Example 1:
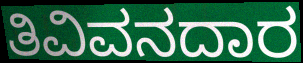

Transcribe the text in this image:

ತಿವಿವನದಾರ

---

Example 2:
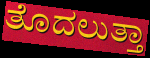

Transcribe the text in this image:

ತೊದಲುತ್ತಾ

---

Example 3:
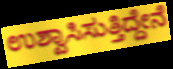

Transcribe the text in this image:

ಉಶ್ವಾಸಿಸುತ್ತಿದ್ದೇನೆ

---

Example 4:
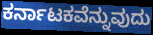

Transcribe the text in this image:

ಕರ್ನಾಟಕವೆನ್ನುವುದು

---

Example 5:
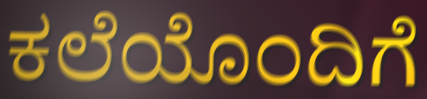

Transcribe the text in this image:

ಕಲೆಯೊಂದಿಗೆ